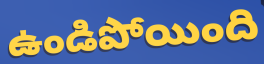
ఉండిపోయింది